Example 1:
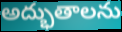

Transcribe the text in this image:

అద్భుతాలను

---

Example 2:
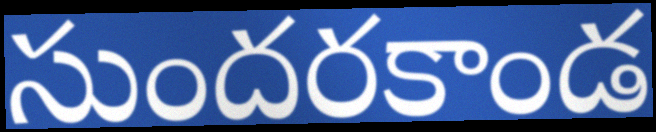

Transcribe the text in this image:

సుందరకాండ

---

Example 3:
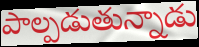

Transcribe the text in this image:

పాల్పడుతున్నాడు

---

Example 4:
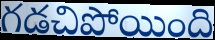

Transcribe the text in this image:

గడచిపోయింది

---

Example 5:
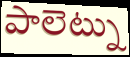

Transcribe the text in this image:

పాలెట్ను